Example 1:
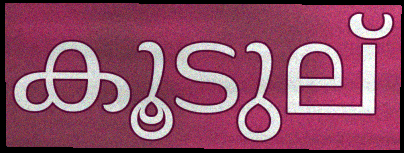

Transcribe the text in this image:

കൂടുല്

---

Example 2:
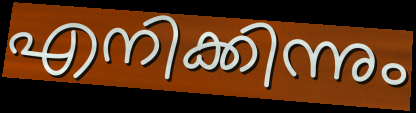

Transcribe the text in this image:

എനിക്കിന്നും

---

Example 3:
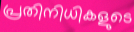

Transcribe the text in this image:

പ്രതിനിധികളുടെ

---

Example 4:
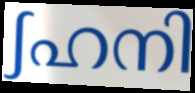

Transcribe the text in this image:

ഽഹനി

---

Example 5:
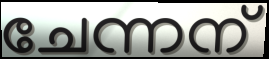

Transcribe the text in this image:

ചേന്നന്